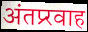
अंतप्र्रवाह